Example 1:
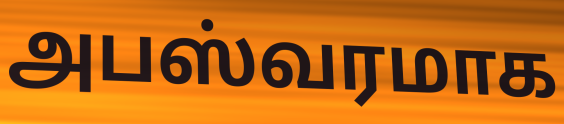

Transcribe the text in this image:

அபஸ்வரமாக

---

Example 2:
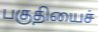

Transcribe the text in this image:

பகுதியைச்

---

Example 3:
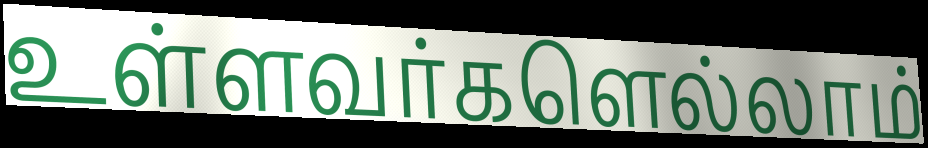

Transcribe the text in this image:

உள்ளவர்களெல்லாம்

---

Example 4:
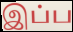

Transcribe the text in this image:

இப்ப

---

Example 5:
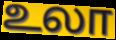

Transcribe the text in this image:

உலா